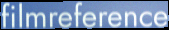
filmreference